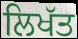
ਲਿਖੱਤ